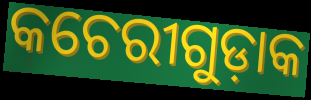
କଚେରୀଗୁଡ଼ାକ